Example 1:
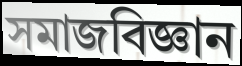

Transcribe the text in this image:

সমাজবিজ্ঞান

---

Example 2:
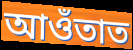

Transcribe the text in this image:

আওঁতাত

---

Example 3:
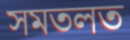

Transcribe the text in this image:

সমতলত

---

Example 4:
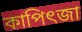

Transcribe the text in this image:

কাপিৎজা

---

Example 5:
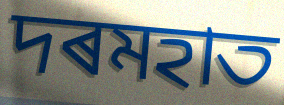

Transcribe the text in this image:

দৰমহাত